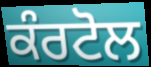
ਕੰਰਟੋਲ